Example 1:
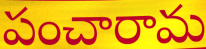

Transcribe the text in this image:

పంచారామ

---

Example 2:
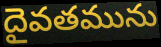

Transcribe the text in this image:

దైవతమును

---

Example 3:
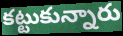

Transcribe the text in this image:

కట్టుకున్నారు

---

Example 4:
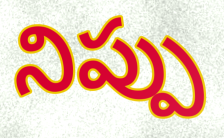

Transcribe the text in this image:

నిప్పు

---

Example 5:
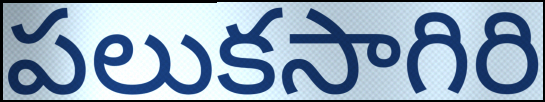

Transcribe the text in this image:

పలుకసాగిరి